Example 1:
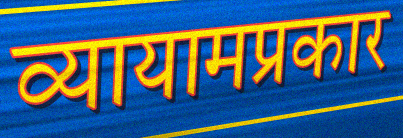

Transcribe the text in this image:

व्यायामप्रकार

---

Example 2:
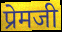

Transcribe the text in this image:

प्रेमजी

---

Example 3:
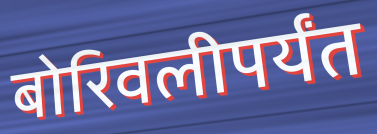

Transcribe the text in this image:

बोरिवलीपर्यंत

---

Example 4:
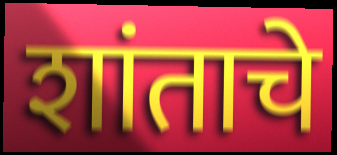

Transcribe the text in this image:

शांताचे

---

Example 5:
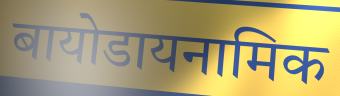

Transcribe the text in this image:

बायोडायनामिक